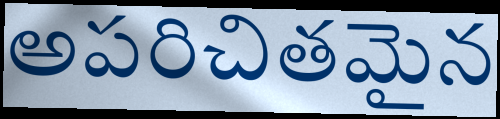
అపరిచితమైన